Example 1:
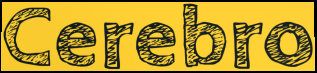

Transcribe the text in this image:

Cerebro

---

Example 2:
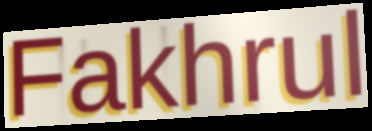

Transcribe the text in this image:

Fakhrul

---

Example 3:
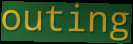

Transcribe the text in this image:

outing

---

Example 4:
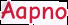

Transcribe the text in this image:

Aapno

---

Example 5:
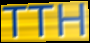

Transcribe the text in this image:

TTH